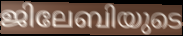
ജിലേബിയുടെ